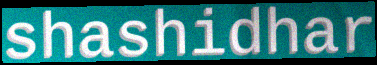
shashidhar